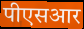
पीएसआर